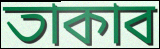
তাকাব